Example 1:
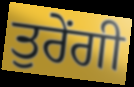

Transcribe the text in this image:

ਤੁਰੇਂਗੀ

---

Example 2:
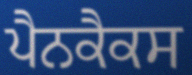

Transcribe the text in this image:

ਪੈਨਕੈਕਸ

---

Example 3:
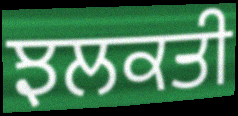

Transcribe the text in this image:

ਝਲਕਤੀ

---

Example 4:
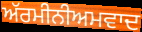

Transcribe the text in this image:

ਅੱਰਮੀਨੀਅਮਵਾਦ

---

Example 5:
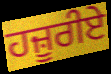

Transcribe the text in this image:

ਹਜ਼ੂਰੀਏ